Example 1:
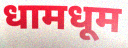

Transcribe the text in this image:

धामधूम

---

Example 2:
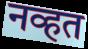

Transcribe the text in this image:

नव्हत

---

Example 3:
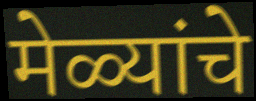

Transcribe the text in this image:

मेळ्यांचे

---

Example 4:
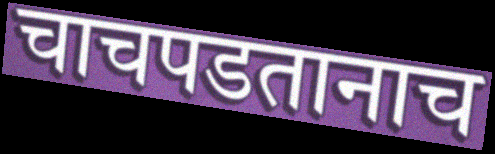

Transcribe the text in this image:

चाचपडतानाच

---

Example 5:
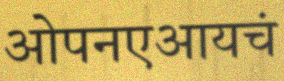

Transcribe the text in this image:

ओपनएआयचं